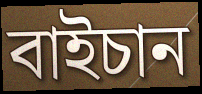
বাইচান